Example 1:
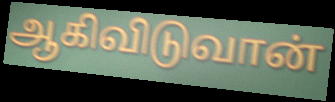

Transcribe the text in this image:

ஆகிவிடுவான்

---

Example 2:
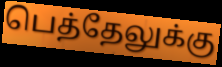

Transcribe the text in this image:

பெத்தேலுக்கு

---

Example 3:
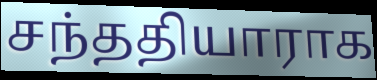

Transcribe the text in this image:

சந்ததியாராக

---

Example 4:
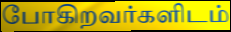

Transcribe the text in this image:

போகிறவர்களிடம்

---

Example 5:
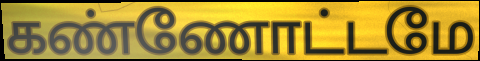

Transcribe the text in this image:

கண்ணோட்டமே